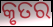
କୃତର